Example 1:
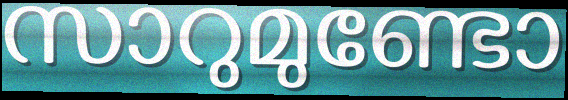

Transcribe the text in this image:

സാറുമുണ്ടോ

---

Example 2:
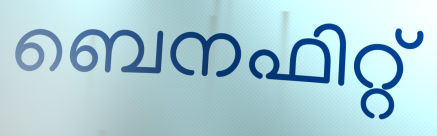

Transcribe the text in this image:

ബെനഫിറ്റ്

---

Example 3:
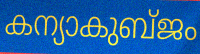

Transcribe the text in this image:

കന്യാകുബ്ജം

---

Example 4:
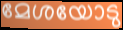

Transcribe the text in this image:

മേശയോടു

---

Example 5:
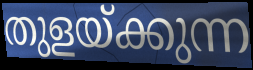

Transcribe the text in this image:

തുളയ്ക്കുന്ന